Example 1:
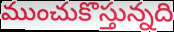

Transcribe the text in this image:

ముంచుకొస్తున్నది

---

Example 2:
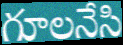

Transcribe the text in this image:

గూలనేసి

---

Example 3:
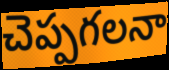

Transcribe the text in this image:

చెప్పగలనా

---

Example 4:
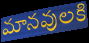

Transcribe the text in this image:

మానవులకి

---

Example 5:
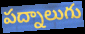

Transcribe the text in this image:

పద్నాలుగు